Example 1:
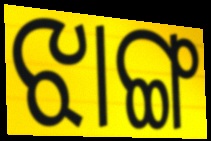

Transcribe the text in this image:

ଝାଙ୍ଗ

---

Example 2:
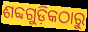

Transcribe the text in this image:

ଶବ୍ଦଗୁଡ଼ିକଠାରୁ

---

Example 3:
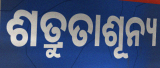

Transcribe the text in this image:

ଶତ୍ରୁତାଶୂନ୍ୟ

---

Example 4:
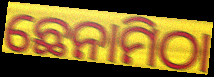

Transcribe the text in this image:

ଛେନାମିଠା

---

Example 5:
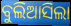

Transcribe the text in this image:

ବୁଲିଆସିଲା